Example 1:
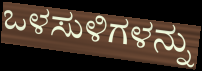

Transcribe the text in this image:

ಒಳಸುಳಿಗಳನ್ನು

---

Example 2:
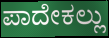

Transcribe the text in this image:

ಪಾದೇಕಲ್ಲು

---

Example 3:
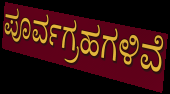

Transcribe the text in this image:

ಪೂರ್ವಗ್ರಹಗಳಿವೆ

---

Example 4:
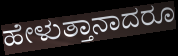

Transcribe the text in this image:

ಹೇಳುತ್ತಾನಾದರೂ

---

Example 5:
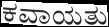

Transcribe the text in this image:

ಕವಾಯತು